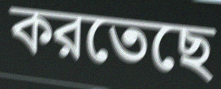
করতেছে